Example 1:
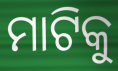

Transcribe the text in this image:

ମାଟିକୁ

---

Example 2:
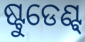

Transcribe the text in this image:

ଷ୍ଟୁଡେଣ୍ଟ୍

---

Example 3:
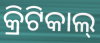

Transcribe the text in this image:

କ୍ରିଟିକାଲ୍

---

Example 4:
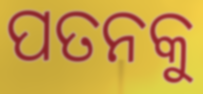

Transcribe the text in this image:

ପତନକୁ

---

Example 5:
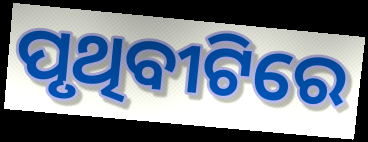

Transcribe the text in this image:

ପୃଥିବୀଟିରେ